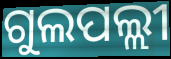
ଗୁଲପଲ୍ଲୀ